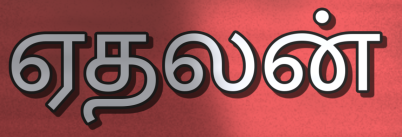
ஏதலன்